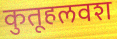
कुतूहलवश